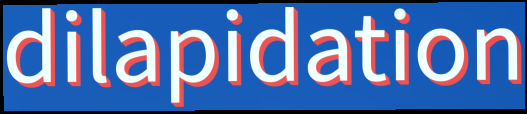
dilapidation